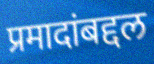
प्रमादांबद्दल